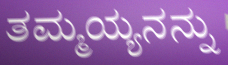
ತಮ್ಮಯ್ಯನನ್ನು